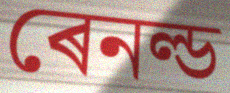
ৰেনল্ড